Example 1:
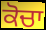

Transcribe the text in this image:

ਕੋਚਾ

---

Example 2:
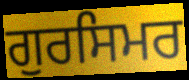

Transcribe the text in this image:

ਗੁਰਸਿਮਰ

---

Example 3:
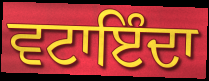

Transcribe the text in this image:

ਵਟਾਇੰਦਾ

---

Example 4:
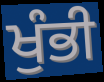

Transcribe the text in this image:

ਖੁੰਭੀ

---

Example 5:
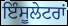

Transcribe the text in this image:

ਇੰਸੂਲੇਟਰਾਂ